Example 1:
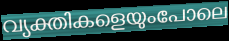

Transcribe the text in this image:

വ്യക്തികളെയുംപോലെ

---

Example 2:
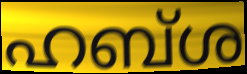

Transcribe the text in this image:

ഹബ്ശ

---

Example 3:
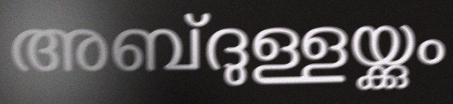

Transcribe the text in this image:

അബ്ദുള്ളയ്ക്കും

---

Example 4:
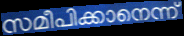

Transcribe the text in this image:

സമീപിക്കാനെന്ന്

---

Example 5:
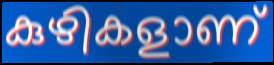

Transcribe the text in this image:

കുഴികളാണ്